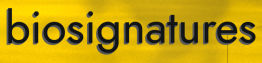
biosignatures